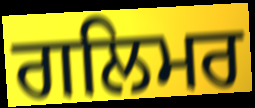
ਗਲਿਮਰ